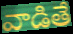
వాడితే